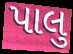
પાલુ